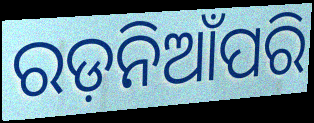
ରଡ଼ନିଆଁପରି